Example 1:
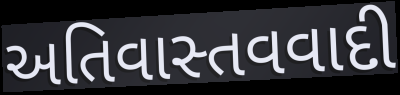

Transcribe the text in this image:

અતિવાસ્તવવાદી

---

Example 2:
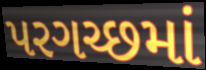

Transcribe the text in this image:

પરગચ્છમાં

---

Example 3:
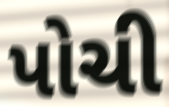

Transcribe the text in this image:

પોચી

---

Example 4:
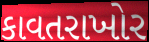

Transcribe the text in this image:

કાવતરાખોર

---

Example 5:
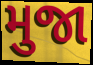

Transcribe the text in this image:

મુજા